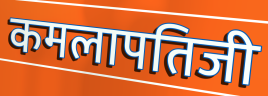
कमलापतिजी